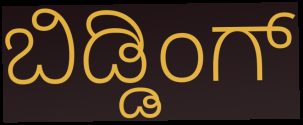
ಬಿಡ್ಡಿಂಗ್